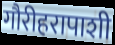
गौरीहरापाशी